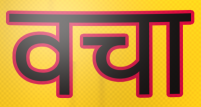
वचा